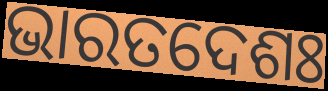
ଭାରତଦେଶଃ